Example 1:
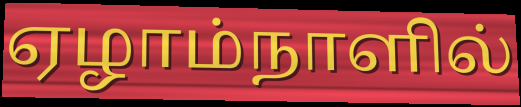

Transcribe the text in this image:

ஏழாம்நாளில்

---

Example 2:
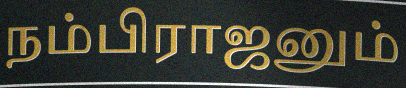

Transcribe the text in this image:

நம்பிராஜனும்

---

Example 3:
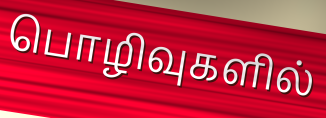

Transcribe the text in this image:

பொழிவுகளில்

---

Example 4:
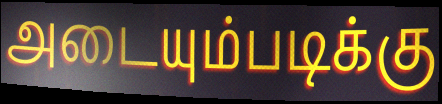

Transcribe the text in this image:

அடையும்படிக்கு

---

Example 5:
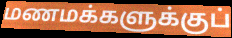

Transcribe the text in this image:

மணமக்களுக்குப்